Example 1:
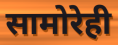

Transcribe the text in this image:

सामोरेही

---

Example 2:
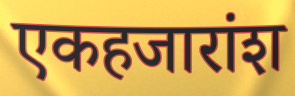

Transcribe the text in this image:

एकहजारांश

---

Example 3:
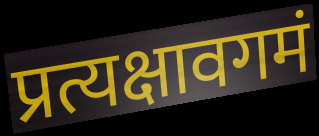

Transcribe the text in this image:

प्रत्यक्षावगमं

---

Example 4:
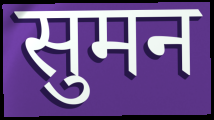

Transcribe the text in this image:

सुमन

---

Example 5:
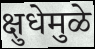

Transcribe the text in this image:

क्षुधेमुळे